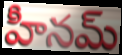
హీనమ్